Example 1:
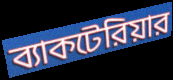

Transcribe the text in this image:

ব্যাকটেরিয়ার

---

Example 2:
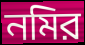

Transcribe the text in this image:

নমির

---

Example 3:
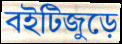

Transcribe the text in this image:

বইটিজুড়ে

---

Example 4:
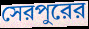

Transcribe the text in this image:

সেরপুরের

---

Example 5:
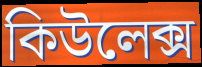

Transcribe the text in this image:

কিউলেক্স